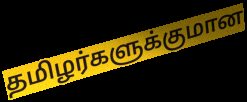
தமிழர்களுக்குமான